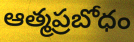
ఆత్మప్రబోధం